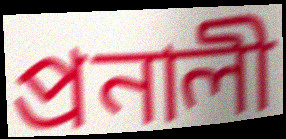
প্রনালী